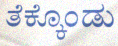
ತೆಕ್ಕೊಂಡು